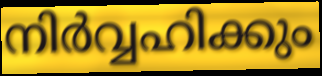
നിർവ്വഹിക്കും